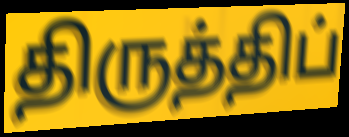
திருத்திப்